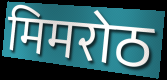
मिमरोठ